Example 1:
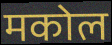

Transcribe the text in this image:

मकोल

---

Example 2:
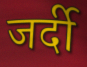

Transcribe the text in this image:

जर्दी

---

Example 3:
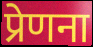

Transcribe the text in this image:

प्रेणना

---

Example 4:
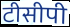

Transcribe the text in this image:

टीसीपी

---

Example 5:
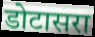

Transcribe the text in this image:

डोटासरा